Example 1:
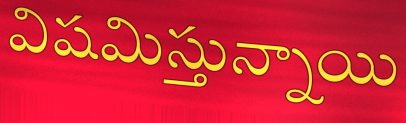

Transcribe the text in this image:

విషమిస్తున్నాయి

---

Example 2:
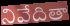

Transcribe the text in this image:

నివేదితా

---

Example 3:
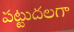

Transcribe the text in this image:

పట్టుదలగా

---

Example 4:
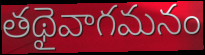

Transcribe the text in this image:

తథైవాగమనం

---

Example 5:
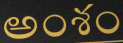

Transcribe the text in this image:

అంశం